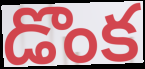
డొంక